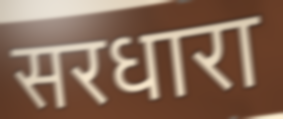
सरधारा